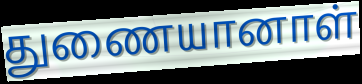
துணையானாள்